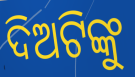
ଦିଅଟିଙ୍କୁ